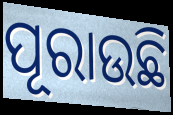
ପୂରାଉଛି